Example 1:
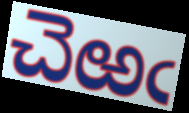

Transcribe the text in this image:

చెఱఁ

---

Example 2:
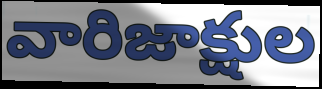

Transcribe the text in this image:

వారిజాక్షుల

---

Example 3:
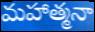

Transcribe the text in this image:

మహాత్మనా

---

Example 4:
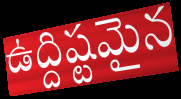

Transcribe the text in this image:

ఉద్దిష్టమైన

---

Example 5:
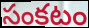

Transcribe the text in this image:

సంకటం